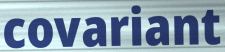
covariant